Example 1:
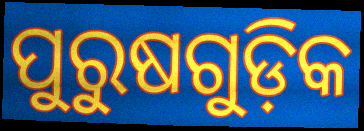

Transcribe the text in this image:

ପୁରୁଷଗୁଡ଼ିକ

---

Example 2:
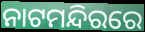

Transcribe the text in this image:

ନାଟମନ୍ଦିରରେ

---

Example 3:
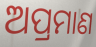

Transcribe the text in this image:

ଅପ୍ରମାଣ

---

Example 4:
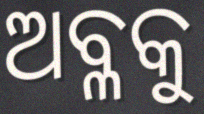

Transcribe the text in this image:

ଅବ୍ଳକୁ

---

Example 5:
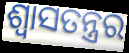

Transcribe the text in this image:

ଶ୍ଵାସତନ୍ତ୍ରର